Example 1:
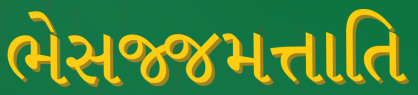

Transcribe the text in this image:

ભેસજ્જમત્તાતિ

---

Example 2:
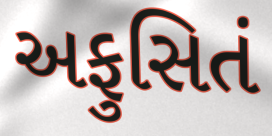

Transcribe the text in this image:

અફુસિતં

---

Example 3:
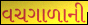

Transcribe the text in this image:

વચગાળાની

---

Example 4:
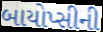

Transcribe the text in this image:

બાયોપ્સીની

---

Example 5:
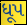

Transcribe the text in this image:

ધૂપ